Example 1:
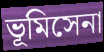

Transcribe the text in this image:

ভূমিসেনা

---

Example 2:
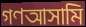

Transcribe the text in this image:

গণআসামি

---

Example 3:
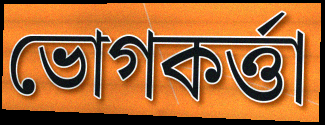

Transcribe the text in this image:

ভোগকর্ত্তা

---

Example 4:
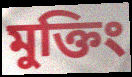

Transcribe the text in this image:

মুক্তিং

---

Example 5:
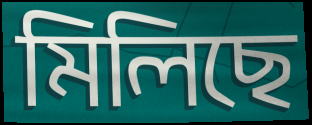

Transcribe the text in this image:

মিলিছে